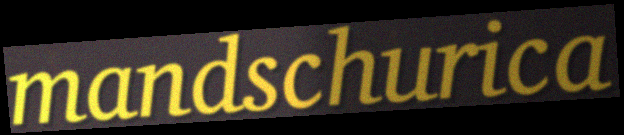
mandschurica